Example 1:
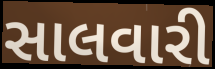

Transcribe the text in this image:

સાલવારી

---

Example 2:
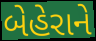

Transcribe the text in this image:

બેહેરાને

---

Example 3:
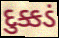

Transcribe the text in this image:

દુક્કડં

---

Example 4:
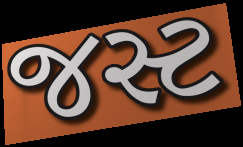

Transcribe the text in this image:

જસ્ટ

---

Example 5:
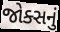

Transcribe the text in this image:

જોક્સનું